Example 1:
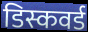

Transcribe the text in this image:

डिस्कवर्ड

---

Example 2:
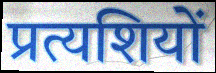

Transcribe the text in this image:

प्रत्यशियों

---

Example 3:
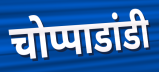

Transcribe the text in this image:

चोप्पाडांडी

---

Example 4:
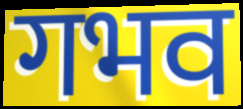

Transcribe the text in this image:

गभव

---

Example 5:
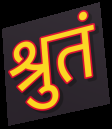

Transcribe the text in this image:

श्रुतं